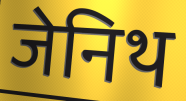
जेनिथ